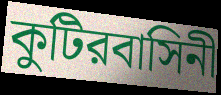
কুটিরবাসিনী